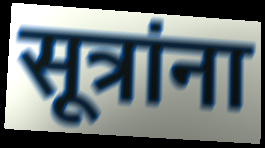
सूत्रांना